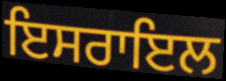
ਇਸਰਾਇਲ